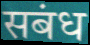
सबंध